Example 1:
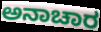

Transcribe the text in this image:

ಅನಾಚಾರ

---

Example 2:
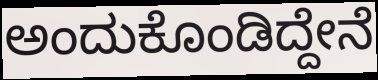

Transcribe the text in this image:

ಅಂದುಕೊಂಡಿದ್ದೇನೆ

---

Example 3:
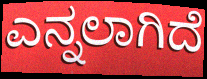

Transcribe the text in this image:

ಎನ್ನಲಾಗಿದೆ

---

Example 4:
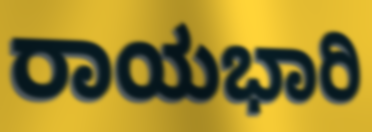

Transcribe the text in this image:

ರಾಯಭಾರಿ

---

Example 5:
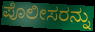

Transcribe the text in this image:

ಪೊಲೀಸರನ್ನು